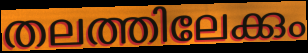
തലത്തിലേക്കും